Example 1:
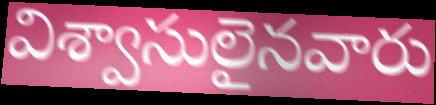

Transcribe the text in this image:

విశ్వాసులైనవారు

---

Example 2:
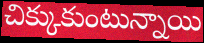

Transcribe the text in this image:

చిక్కుకుంటున్నాయి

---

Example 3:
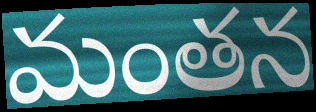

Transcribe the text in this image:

మంతన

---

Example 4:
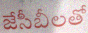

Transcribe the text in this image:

జేసీబీలతో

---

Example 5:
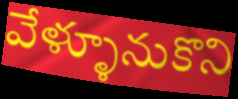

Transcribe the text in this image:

వేళ్ళూనుకొని